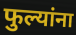
फुल्यांना